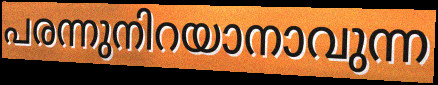
പരന്നുനിറയാനാവുന്ന